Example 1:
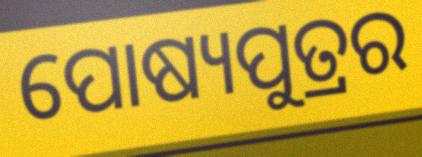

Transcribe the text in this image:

ପୋଷ୍ୟପୁତ୍ରର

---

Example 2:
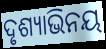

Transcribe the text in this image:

ଦୃଶ୍ୟାଭିନୟ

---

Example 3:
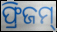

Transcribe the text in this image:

ଫ୍ରିଜମ୍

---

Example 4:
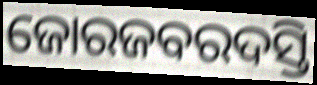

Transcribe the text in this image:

ଜୋରଜବରଦସ୍ତି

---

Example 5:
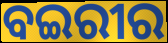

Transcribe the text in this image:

ବଇରୀର